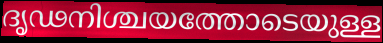
ദൃഢനിശ്ചയത്തോടെയുള്ള